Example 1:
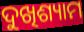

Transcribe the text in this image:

ଦୁଖିଶ୍ୟାମ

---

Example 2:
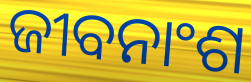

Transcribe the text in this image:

ଜୀବନାଂଶ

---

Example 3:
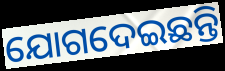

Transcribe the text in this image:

ଯୋଗଦେଇଛନ୍ତି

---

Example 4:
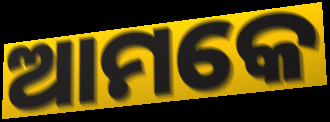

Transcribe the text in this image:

ଆମକେ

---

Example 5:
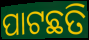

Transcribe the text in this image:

ପାଟଛତି